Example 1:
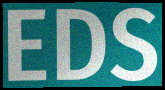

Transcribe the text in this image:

EDS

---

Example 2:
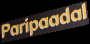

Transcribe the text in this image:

Paripaadal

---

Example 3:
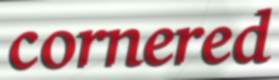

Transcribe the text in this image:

cornered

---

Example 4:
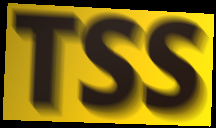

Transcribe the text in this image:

TSS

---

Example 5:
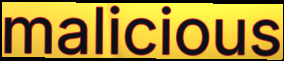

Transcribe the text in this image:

malicious